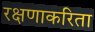
रक्षणाकरिता